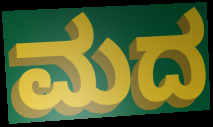
ಮದ